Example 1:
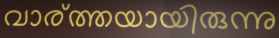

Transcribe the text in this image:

വാര്ത്തയായിരുന്നു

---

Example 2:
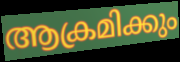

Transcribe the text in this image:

ആക്രമിക്കും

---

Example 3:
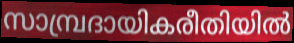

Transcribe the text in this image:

സാമ്പ്രദായികരീതിയിൽ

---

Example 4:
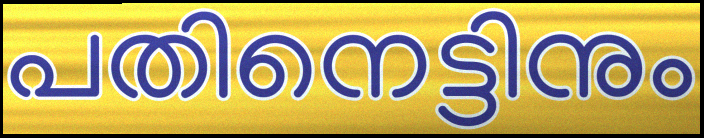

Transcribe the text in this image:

പതിനെട്ടിനും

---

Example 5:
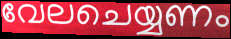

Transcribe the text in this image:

വേലചെയ്യണം